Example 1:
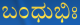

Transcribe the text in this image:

ಬಂಧುಭಿಃ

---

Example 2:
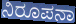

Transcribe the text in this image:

ನಿರೂಪನಾ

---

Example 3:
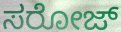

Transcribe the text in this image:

ಸರೋಜ್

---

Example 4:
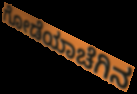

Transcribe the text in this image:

ಗೋಡೆಯಾಚೆಗಿನ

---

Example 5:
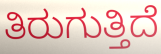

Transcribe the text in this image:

ತಿರುಗುತ್ತಿದೆ